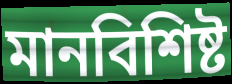
মানবিশিষ্ট